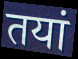
तयां